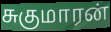
சுகுமாரன்